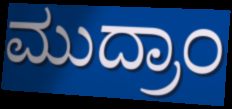
ಮುದ್ರಾಂ